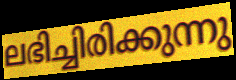
ലഭിച്ചിരിക്കുന്നു